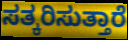
ಸತ್ಕರಿಸುತ್ತಾರೆ